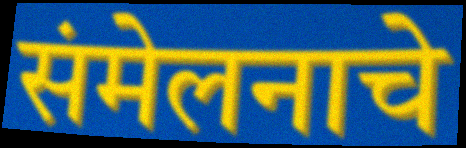
संमेलनाचे